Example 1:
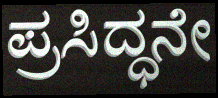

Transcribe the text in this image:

ಪ್ರಸಿದ್ಧನೇ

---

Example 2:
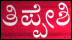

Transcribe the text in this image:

ತಿಪ್ಪೇಶಿ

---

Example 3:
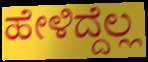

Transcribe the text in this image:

ಹೇಳಿದ್ದೆಲ್ಲ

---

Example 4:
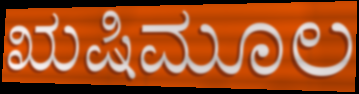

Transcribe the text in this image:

ಋಷಿಮೂಲ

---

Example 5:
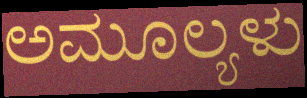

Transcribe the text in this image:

ಅಮೂಲ್ಯಳು